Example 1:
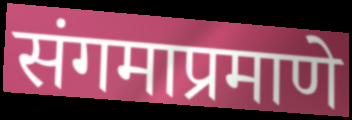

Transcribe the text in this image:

संगमाप्रमाणे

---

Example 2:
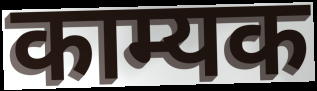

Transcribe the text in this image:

काम्यक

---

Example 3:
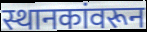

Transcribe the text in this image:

स्थानकांवरून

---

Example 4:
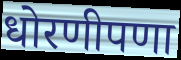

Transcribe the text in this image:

धोरणीपणा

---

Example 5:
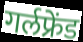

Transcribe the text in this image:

गर्लफ्रेंड